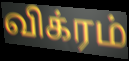
விக்ரம்